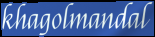
khagolmandal